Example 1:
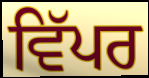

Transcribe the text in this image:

ਵਿੱਪਰ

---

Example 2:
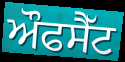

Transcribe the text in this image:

ਔਫਸੈੱਟ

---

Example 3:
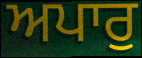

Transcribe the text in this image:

ਅਪਾਰੁ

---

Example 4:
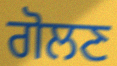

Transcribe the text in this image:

ਗੋਲਣ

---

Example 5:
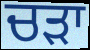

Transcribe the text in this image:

ਚੜਾ